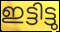
ഇട്ടിട്ടു